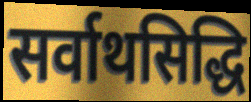
सर्वाथसिद्धि